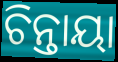
ଚିନ୍ତାୟା